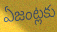
ఏజంట్లకు